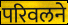
परिवलने